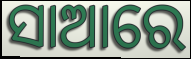
ସାଆରେ